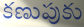
కణుపుకు